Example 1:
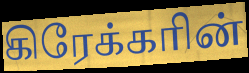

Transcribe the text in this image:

கிரேக்கரின்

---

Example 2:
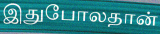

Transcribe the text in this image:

இதுபோலதான்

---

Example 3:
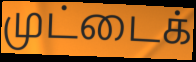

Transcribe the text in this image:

முட்டைக்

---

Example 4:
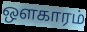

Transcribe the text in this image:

ஔகாரம்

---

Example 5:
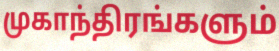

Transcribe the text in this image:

முகாந்திரங்களும்